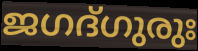
ജഗദ്ഗുരുഃ